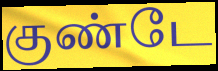
குண்டே